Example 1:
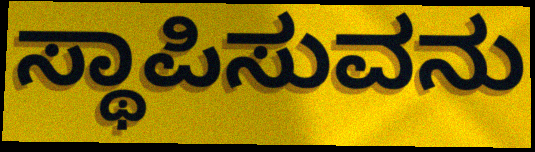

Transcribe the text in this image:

ಸ್ಥಾಪಿಸುವನು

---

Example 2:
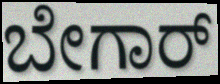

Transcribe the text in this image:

ಬೇಗಾರ್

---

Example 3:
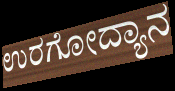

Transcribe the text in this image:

ಉರಗೋದ್ಯಾನ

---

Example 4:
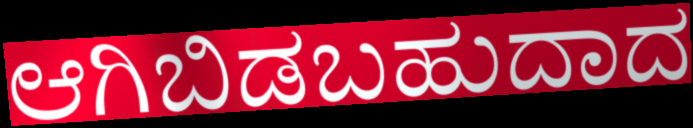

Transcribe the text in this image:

ಆಗಿಬಿಡಬಹುದಾದ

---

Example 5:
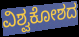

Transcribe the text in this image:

ವಿಶ್ವಕೋಶದ